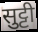
सुट्टी